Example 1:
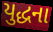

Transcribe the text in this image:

યુદ્ધના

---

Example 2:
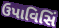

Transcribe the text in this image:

ઉપાવિસિં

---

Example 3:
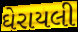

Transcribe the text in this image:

ઘેરાયલી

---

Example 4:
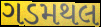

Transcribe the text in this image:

ગડમથલ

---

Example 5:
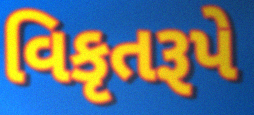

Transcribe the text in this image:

વિકૃતરૂપે